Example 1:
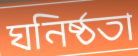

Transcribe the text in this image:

ঘনিষ্ঠতা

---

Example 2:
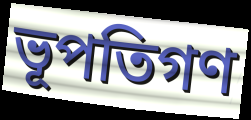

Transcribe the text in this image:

ভূপতিগণ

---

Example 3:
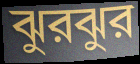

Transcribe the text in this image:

ঝুরঝুর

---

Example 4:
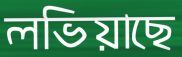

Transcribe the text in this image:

লভিয়াছে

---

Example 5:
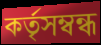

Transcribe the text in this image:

কর্তৃসম্বন্ধ